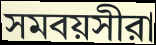
সমবয়সীরা